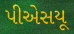
પીએસયૂ